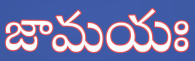
జామయః